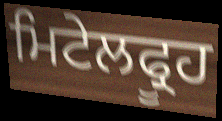
ਮਿਟੇਲਫ੍ਰੂਹ